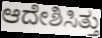
ಆದೇಶಿಸಿತ್ತು